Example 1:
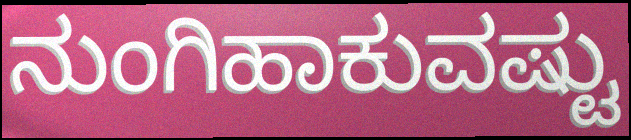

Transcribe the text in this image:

ನುಂಗಿಹಾಕುವಷ್ಟು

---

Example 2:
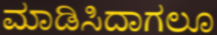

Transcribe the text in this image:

ಮಾಡಿಸಿದಾಗಲೂ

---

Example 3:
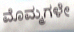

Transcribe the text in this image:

ಮೊಮ್ಮಗಳೇ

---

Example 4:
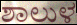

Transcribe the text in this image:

ಶಾಲುಳ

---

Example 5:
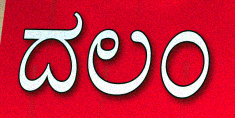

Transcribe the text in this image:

ದಲಂ